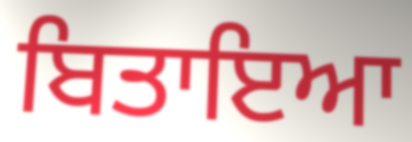
ਬਿਤਾਇਆ